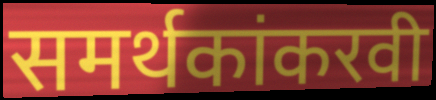
समर्थकांकरवी